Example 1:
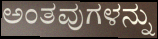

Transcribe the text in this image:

ಅಂತವುಗಳನ್ನು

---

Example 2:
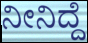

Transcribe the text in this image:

ನೀನಿದ್ದೆ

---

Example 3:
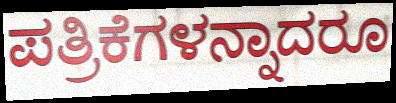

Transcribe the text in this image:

ಪತ್ರಿಕೆಗಳನ್ನಾದರೂ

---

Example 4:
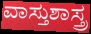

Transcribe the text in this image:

ವಾಸ್ತುಶಾಸ್ತ್ರ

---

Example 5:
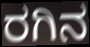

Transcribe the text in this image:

ರಗಿನ